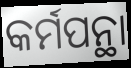
କର୍ମପନ୍ଥା